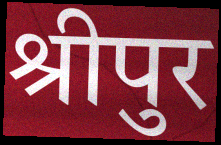
श्रीपुर